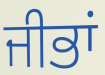
ਜੀਭਾਂ